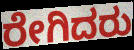
ರೇಗಿದರು